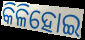
କିଳିହୋଇ